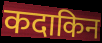
कदाकिन